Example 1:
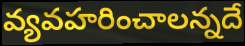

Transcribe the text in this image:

వ్యవహరించాలన్నదే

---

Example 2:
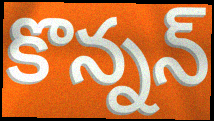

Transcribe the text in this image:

కొన్నన్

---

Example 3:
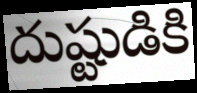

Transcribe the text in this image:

దుష్టుడికి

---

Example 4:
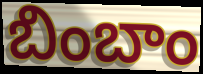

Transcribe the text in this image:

బింబాం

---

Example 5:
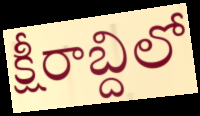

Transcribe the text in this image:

క్షీరాబ్దిలో